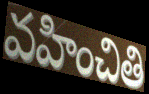
వహించితి